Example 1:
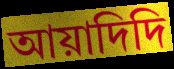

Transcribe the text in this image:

আয়াদিদি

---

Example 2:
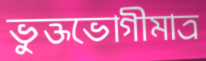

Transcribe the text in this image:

ভুক্তভোগীমাত্র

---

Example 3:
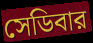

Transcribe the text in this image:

সেডিবার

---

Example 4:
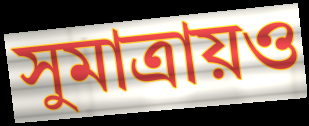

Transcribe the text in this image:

সুমাত্রায়ও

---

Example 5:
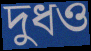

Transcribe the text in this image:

দুধও